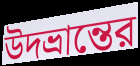
উদভ্রান্তের